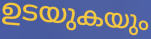
ഉടയുകയും